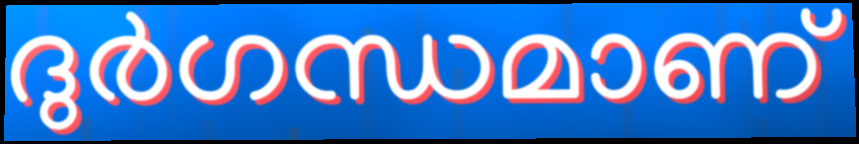
ദുർഗന്ധമാണ്